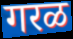
गरळ